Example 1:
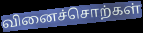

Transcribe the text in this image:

வினைச்சொற்கள்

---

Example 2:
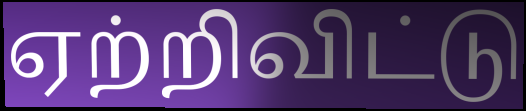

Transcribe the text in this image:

ஏற்றிவிட்டு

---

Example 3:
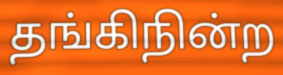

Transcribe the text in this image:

தங்கிநின்ற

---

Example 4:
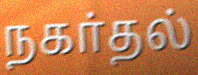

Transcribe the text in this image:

நகர்தல்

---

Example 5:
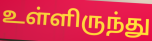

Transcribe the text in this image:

உள்ளிருந்து